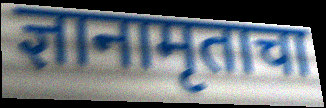
ज्ञानामृताचा